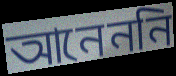
আনেননি